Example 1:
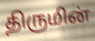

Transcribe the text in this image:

திருமின்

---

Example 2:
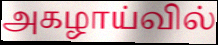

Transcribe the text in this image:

அகழாய்வில்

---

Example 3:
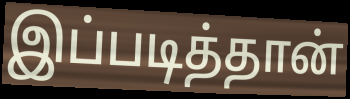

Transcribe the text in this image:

இப்படித்தான்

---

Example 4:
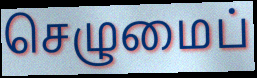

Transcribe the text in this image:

செழுமைப்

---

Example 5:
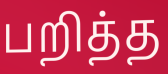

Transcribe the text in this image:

பறித்த